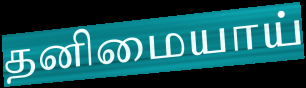
தனிமையாய்